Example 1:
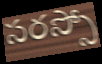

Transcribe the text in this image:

సరస్సో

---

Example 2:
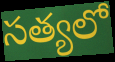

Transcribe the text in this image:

సత్యలో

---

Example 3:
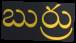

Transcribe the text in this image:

బుర్రు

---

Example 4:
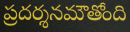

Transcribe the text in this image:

ప్రదర్శనమౌతోంది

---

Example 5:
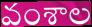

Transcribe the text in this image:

వంశాల